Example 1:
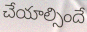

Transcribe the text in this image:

చేయాల్సిందే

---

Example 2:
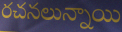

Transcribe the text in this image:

రచనలున్నాయి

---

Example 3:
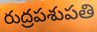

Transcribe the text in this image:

రుద్రపశుపతి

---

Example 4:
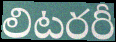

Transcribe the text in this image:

లిటరరీ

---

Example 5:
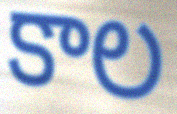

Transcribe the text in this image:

కాల